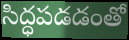
సిద్ధపడడంతో